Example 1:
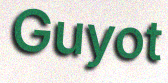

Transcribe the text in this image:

Guyot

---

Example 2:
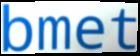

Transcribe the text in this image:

bmet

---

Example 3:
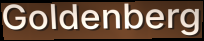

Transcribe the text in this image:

Goldenberg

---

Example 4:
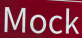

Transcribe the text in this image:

Mock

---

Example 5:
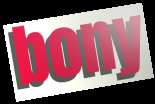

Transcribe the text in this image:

bony